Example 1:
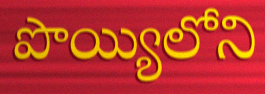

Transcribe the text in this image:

పొయ్యిలోని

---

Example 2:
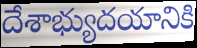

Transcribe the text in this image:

దేశాభ్యుదయానికి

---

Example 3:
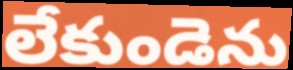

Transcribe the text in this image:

లేకుండెను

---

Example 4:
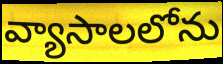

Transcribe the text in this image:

వ్యాసాలలోను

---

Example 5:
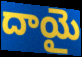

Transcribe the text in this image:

దాయై